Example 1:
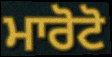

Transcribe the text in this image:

ਮਾਰੋਟੋ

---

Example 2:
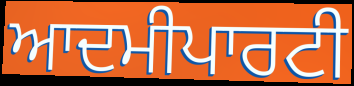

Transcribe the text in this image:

ਆਦਮੀਪਾਰਟੀ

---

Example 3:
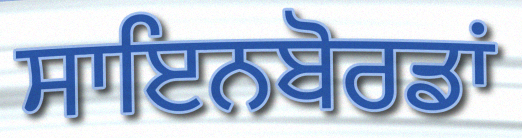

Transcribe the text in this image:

ਸਾਇਨਬੋਰਡਾਂ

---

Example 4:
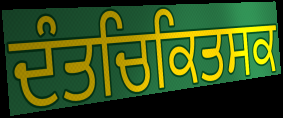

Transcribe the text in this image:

ਦੰਤਚਿਕਿਤਸਕ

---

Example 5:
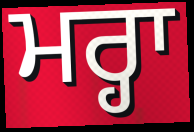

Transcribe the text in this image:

ਮਰ੍ਹਾ